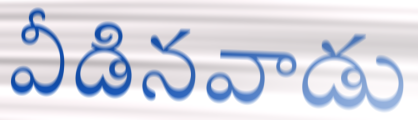
వీడినవాడు